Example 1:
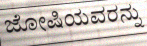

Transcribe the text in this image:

ಜೋಷಿಯವರನ್ನು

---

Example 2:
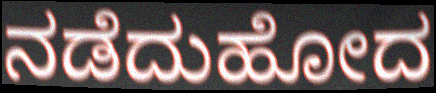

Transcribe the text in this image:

ನಡೆದುಹೋದ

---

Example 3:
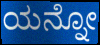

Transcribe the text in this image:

ಯನ್ನೋ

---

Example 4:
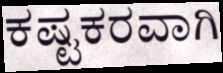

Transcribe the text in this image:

ಕಷ್ಟಕರವಾಗಿ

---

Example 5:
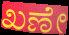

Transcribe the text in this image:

ಖಣೇ